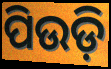
ପିଉଡ଼ି